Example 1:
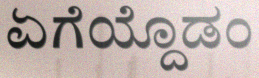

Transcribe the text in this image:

ಏಗೆಯ್ದೊಡಂ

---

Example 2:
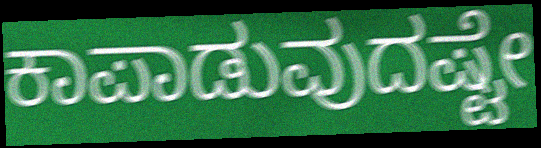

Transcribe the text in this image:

ಕಾಪಾಡುವುದಷ್ಟೇ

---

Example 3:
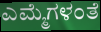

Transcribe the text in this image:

ಎಮ್ಮೆಗಳಂತೆ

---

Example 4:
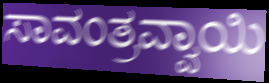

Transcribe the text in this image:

ಸಾವಂತ್ರವ್ವಾಯಿ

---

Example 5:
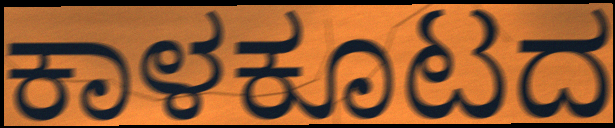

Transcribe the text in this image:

ಕಾಳಕೂಟದ